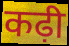
कढ़ी